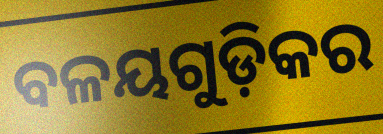
ବଳୟଗୁଡ଼ିକର